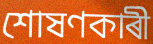
শোষণকাৰী